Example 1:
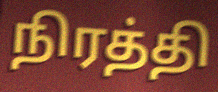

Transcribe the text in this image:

நிரத்தி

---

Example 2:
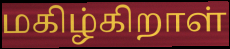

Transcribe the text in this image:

மகிழ்கிறாள்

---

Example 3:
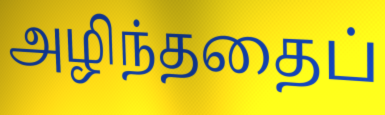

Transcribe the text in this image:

அழிந்ததைப்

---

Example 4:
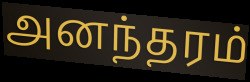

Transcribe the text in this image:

அனந்தரம்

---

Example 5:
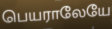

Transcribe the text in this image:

பெயராலேயே